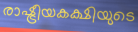
രാഷ്ട്രീയകക്ഷിയുടെ